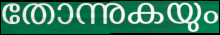
തോന്നുകയും